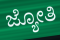
ಜ್ಯೋತಿ